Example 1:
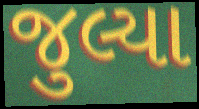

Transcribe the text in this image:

જુલ્યા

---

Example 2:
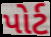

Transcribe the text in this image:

પોર્ટ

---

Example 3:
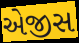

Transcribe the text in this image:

એજીસ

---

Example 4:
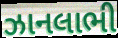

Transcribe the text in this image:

ઝાનલાભી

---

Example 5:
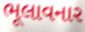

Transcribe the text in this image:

ભૂલાવનાર